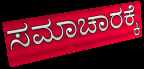
ಸಮಾಚಾರಕ್ಕೆ